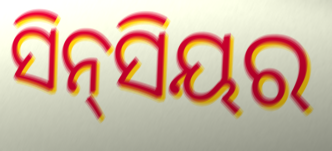
ସିନ୍‌ସିୟର